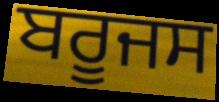
ਬਰੂਜਸ